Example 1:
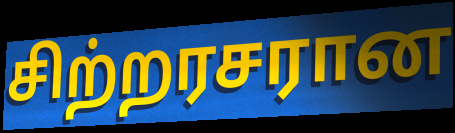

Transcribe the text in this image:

சிற்றரசரான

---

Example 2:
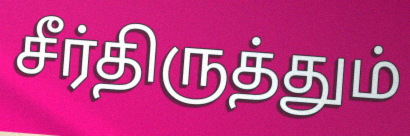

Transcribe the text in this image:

சீர்திருத்தும்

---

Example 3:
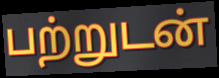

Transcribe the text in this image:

பற்றுடன்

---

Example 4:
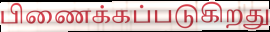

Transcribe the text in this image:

பிணைக்கப்படுகிறது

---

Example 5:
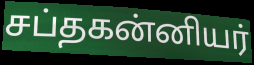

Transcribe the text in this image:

சப்தகன்னியர்